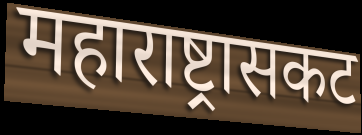
महाराष्ट्रासकट